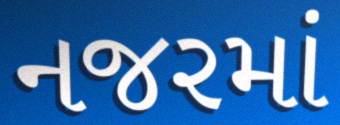
નજરમાં